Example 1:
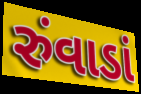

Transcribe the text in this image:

રુંવાડાં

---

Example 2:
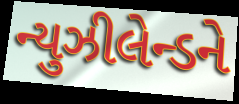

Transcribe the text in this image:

ન્યુઝીલેન્ડને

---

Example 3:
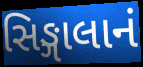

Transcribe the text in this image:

સિઙ્ગાલાનં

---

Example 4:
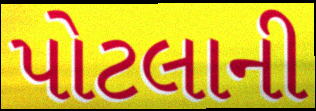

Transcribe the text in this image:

પોટલાની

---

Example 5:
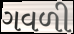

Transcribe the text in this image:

ગવળી